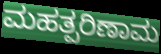
ಮಹತ್ಪರಿಣಾಮ